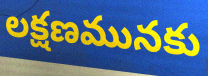
లక్షణమునకు